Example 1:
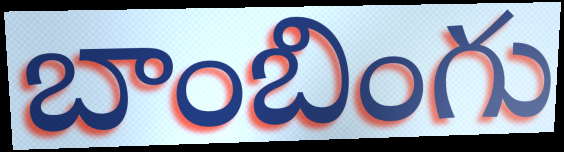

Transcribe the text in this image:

బాంబింగు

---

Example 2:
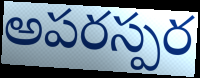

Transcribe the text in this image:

అపరస్పర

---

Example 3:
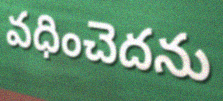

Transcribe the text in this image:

వధించెదను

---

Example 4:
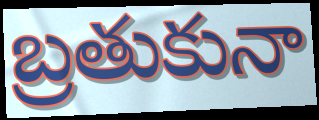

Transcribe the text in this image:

బ్రతుకునా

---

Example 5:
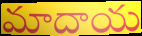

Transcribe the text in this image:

మాదాయ